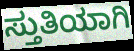
ಸ್ತುತಿಯಾಗಿ